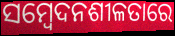
ସମ୍ବେଦନଶୀଳତାରେ